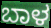
ಬಾಳ